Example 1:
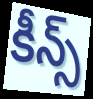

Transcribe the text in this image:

కీన్స్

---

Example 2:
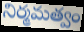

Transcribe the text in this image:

నిర్మమత్వం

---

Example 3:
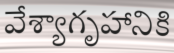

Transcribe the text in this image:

వేశ్యాగృహానికి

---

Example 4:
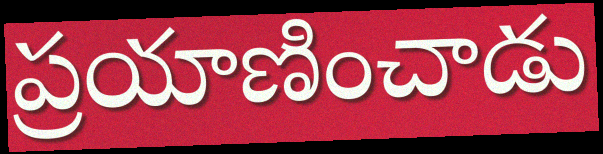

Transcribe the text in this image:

ప్రయాణించాడు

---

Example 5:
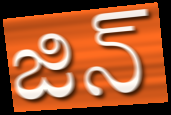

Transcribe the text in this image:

జిన్